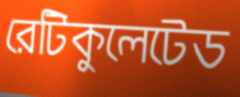
রেটিকুলেটেড